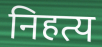
निहत्य